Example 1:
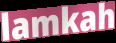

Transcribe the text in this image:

lamkah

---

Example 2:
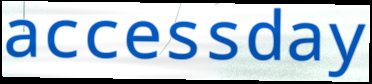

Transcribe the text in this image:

accessday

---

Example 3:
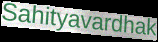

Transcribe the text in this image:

Sahityavardhak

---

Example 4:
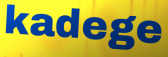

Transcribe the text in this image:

kadege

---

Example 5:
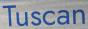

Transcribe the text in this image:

Tuscan